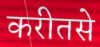
करीतसे